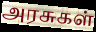
அரசுகள்